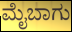
ಮೈಬಾಗು